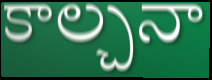
కాల్చనా